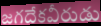
జగదేకవీరుడు